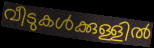
വീടുകൾക്കുള്ളിൽ